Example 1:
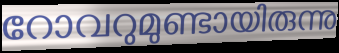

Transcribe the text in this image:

റോവറുമുണ്ടായിരുന്നു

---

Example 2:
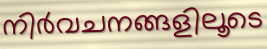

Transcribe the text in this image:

നിർവചനങ്ങളിലൂടെ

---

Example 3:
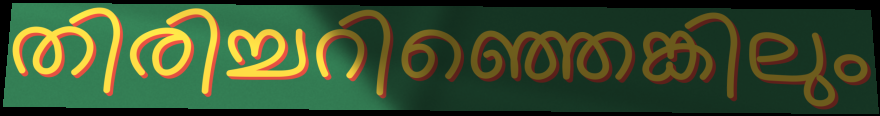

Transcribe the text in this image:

തിരിച്ചറിഞ്ഞെങ്കിലും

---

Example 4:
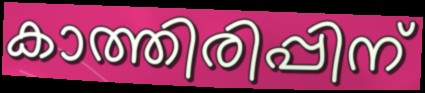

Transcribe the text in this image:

കാത്തിരിപ്പിന്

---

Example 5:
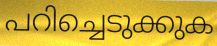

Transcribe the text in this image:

പറിച്ചെടുക്കുക